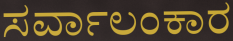
ಸರ್ವಾಲಂಕಾರ